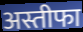
अस्तीफा